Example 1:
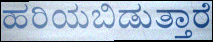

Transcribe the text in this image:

ಹರಿಯಬಿಡುತ್ತಾರೆ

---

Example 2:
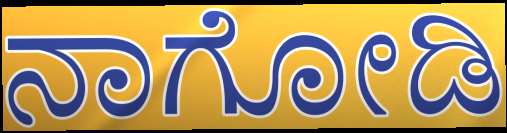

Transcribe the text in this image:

ನಾಗೋಡಿ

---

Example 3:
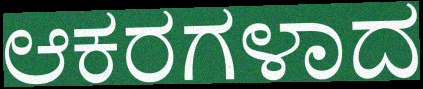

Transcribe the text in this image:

ಆಕರಗಳಾದ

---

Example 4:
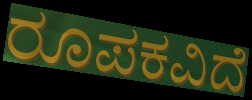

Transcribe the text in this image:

ರೂಪಕವಿದೆ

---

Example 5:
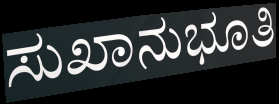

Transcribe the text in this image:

ಸುಖಾನುಭೂತಿ